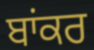
ਬਾਂਕਰ